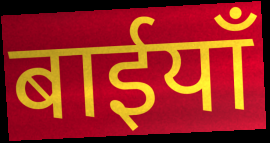
बाईयाँ